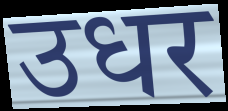
उधर